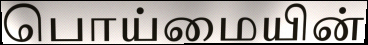
பொய்மையின்